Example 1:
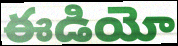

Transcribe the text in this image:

ఈడియో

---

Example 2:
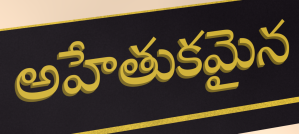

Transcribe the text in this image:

అహేతుకమైన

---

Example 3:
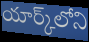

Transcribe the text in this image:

యార్క్‌లోని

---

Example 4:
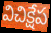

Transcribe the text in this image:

విచిక్షేప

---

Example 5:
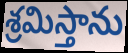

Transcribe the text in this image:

శ్రమిస్తాను